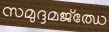
സമുദ്ദമജ്ഝേ